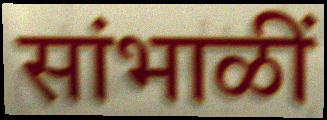
सांभाळीं